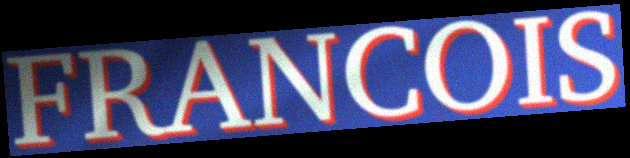
FRANCOIS